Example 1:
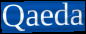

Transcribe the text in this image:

Qaeda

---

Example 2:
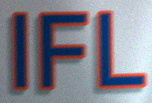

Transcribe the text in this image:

IFL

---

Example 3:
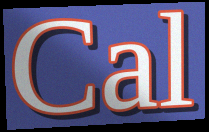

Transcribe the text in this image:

Cal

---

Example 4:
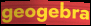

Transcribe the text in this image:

geogebra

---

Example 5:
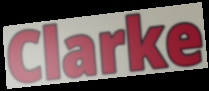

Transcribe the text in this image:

Clarke